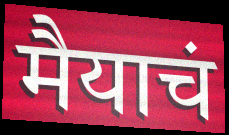
मैयाचं